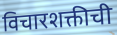
विचारशक्तीची